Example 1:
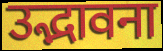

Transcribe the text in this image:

उद्भावना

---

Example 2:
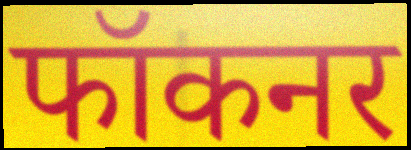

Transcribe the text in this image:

फॉकनर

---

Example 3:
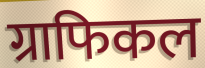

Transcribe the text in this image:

ग्राफिकल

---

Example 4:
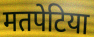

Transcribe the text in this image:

मतपेटिया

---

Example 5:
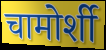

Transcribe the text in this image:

चामोर्शी